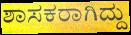
ಶಾಸಕರಾಗಿದ್ದು